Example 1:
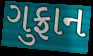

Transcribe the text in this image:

ગુફ્રાન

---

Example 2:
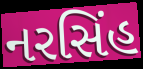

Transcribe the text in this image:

નરસિંહ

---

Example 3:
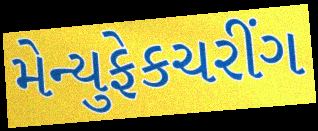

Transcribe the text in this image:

મેન્યુફેકચરીંગ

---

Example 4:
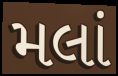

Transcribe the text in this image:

મલાં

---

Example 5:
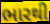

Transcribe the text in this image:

ભારથી